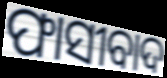
ଫାସୀବାଦ